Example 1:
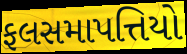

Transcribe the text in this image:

ફલસમાપત્તિયો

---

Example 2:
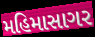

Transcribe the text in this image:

મહિમાસાગર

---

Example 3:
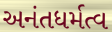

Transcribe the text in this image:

અનંતધર્મત્વ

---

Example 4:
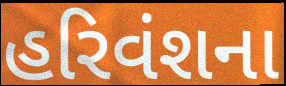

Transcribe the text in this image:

હરિવંશના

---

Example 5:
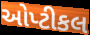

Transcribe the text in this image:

ઓપ્ટીકલ